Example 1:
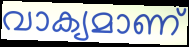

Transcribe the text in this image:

വാക്യമാണ്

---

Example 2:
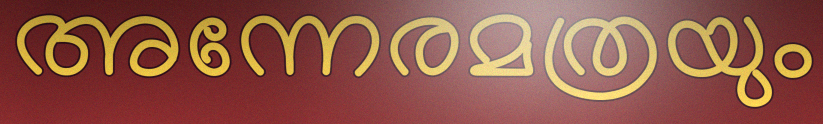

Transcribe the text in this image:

അന്നേരമത്രയും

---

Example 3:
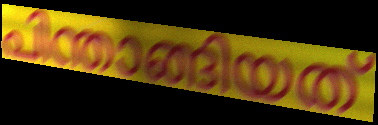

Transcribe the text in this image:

പിന്താങ്ങിയത്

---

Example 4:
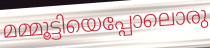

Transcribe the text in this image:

മമ്മൂട്ടിയെപ്പോലൊരു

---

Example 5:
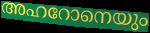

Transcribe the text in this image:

അഹറോനെയും